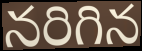
నరిగిన